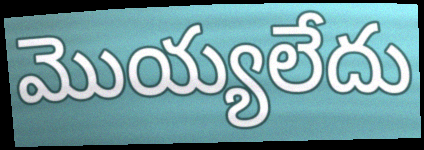
మొయ్యలేదు